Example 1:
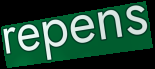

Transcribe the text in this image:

repens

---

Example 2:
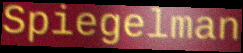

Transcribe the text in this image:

Spiegelman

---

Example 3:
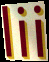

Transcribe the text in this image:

lii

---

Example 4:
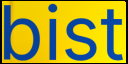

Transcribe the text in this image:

bist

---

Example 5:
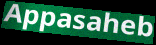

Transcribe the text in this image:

Appasaheb